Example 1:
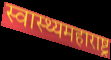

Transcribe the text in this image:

स्वास्थ्यमहाराष्ट्र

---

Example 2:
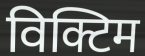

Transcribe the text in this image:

विक्टिम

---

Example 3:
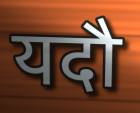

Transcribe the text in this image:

यदौ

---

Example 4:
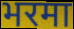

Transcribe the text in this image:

भरमा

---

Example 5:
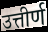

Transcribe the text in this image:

उत्तीर्ण